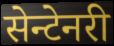
सेन्टेनरी